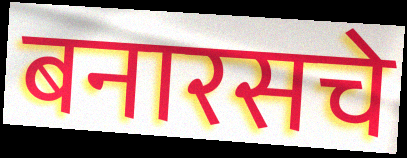
बनारसचे